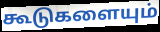
கூடுகளையும்